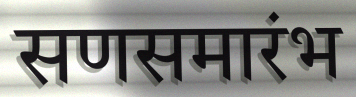
सणसमारंभ